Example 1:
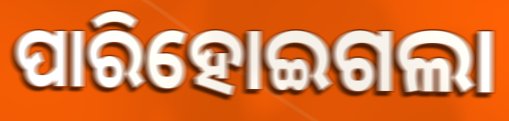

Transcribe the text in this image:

ପାରିହୋଇଗଲା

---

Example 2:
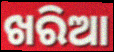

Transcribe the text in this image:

ଖରିଆ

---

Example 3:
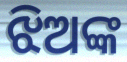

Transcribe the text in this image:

ଝିଅଙ୍କ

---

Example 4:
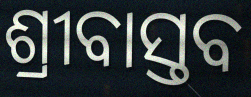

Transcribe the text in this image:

ଶ୍ରୀବାସ୍ତବ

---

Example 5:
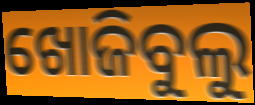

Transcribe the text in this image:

ଖୋଜିବୁଲୁ